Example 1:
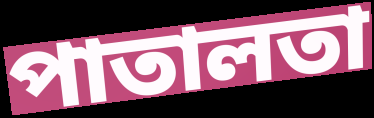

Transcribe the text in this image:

পাতালতা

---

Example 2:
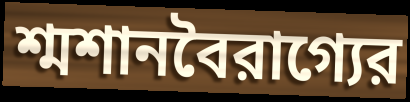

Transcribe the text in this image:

শ্মশানবৈরাগ্যের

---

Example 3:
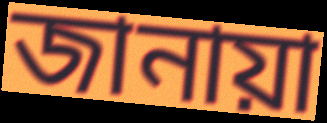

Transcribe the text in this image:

জানায়া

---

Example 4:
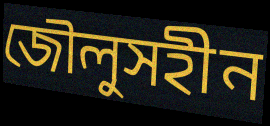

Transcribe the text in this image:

জৌলুসহীন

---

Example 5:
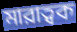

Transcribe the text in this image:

মারাত্বক